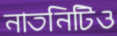
নাতনিটিও